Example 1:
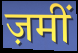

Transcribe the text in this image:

ज़मीं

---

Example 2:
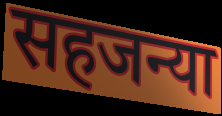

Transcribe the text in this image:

सहजन्या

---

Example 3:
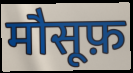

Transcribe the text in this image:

मौसूफ़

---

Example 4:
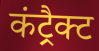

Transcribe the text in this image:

कंट्रैक्ट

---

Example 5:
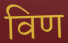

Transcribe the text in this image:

विण